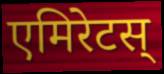
एमिरेटस्